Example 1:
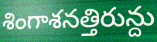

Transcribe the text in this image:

శింగాశనత్తిరున్దు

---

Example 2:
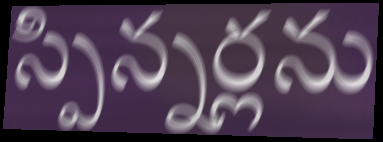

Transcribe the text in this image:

స్పిన్నర్లను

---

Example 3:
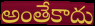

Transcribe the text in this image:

అంతేకాదు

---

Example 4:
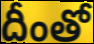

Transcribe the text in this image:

దీంతో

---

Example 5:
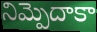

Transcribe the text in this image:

నిమ్పెదాకా